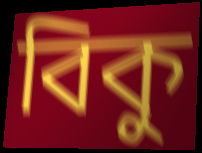
বিকু